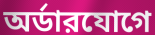
অর্ডারযোগে